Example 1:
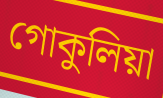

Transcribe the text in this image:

গোকুলিয়া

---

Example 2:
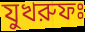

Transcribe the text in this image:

যুখরুফঃ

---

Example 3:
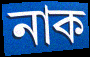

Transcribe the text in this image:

নাক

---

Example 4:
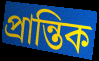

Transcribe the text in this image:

প্রান্তিক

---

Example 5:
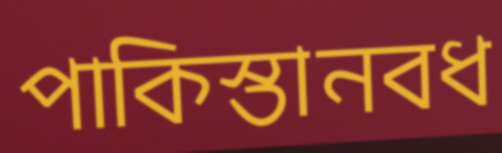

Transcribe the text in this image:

পাকিস্তানবধ